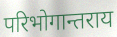
परिभोगान्तराय